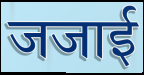
जजाई